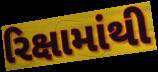
રિક્ષામાંથી